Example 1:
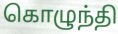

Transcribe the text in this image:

கொழுந்தி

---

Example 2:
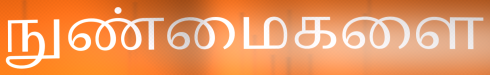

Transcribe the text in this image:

நுண்மைகளை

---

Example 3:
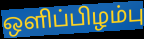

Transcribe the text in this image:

ஒளிப்பிழம்பு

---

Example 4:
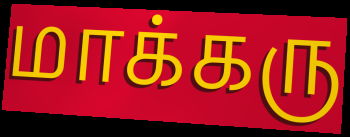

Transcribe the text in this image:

மாக்கரு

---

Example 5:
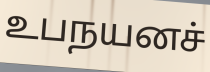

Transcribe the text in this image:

உபநயனச்